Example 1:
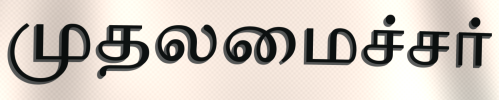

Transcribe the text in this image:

முதலமைச்சர்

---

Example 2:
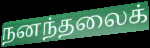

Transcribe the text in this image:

நனந்தலைக்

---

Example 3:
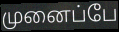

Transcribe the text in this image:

முனைப்பே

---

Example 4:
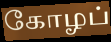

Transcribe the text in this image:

கோழப்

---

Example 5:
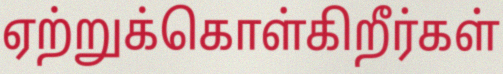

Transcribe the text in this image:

ஏற்றுக்கொள்கிறீர்கள்